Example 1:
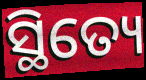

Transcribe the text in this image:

ସ୍ଥିତ୍ୟେ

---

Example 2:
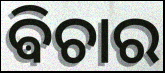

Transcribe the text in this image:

ଵିଚାର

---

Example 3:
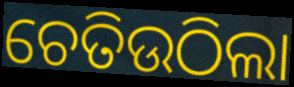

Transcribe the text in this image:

ଚେତିଉଠିଲା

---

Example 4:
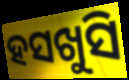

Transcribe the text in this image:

ହସଖୁସି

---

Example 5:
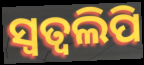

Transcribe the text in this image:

ସ୍ଵତ୍ଵଲିପି